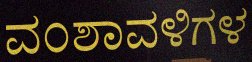
ವಂಶಾವಳಿಗಳ